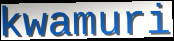
kwamuri